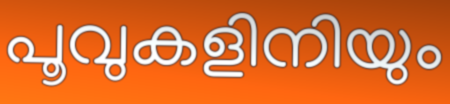
പൂവുകളിനിയും